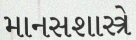
માનસશાસ્ત્રે